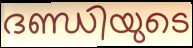
ദണ്ഡിയുടെ